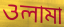
ওলামা